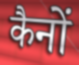
कैनों